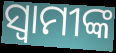
ସ୍ୱାମୀଙ୍କ